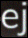
ej